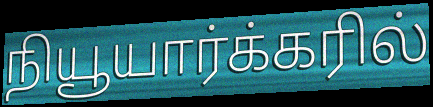
நியூயார்க்கரில்